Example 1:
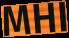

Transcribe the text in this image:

MHI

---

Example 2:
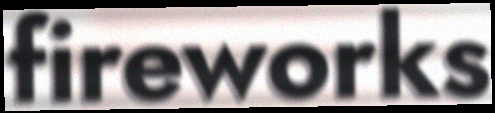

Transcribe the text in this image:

fireworks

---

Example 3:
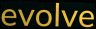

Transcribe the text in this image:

evolve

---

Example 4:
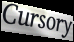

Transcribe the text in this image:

Cursory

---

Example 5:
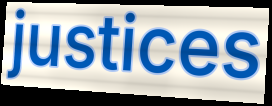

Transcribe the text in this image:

justices